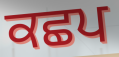
ਕਛਪ